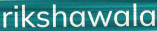
rikshawala